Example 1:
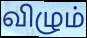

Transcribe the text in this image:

விழும்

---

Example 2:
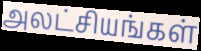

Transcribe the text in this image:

அலட்சியங்கள்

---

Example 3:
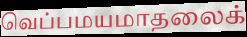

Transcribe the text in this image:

வெப்பமயமாதலைக்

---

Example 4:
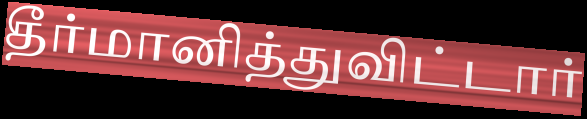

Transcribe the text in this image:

தீர்மானித்துவிட்டார்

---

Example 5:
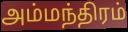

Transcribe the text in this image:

அம்மந்திரம்